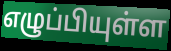
எழுப்பியுள்ள